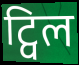
ट्विल